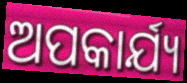
ଅପକାର୍ଯ୍ୟ